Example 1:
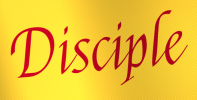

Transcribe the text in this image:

Disciple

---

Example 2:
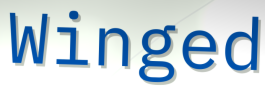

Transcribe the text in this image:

Winged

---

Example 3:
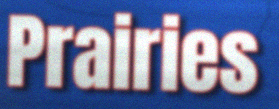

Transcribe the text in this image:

Prairies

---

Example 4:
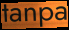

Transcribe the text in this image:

tanpa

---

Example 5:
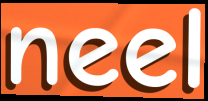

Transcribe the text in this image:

neel